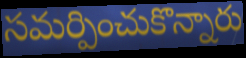
సమర్పించుకొన్నారు